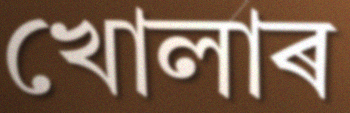
খোলাৰ